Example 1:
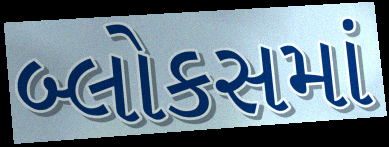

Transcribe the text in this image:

બ્લોકસમાં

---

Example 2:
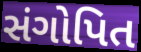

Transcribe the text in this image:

સંગોપિત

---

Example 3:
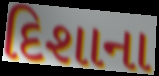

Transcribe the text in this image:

દિશાના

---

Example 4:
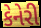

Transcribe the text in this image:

કેનેરી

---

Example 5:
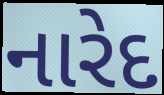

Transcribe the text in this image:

નારેદ